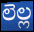
లెల్ల